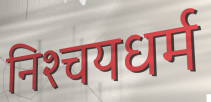
निश्चयधर्म